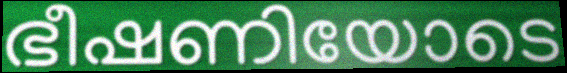
ഭീഷണിയോടെ